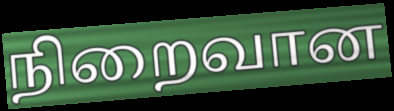
நிறைவான